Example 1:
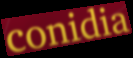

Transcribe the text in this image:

conidia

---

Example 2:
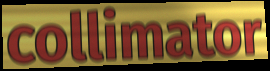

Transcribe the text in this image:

collimator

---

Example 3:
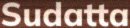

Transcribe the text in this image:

Sudatta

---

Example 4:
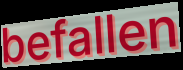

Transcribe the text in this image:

befallen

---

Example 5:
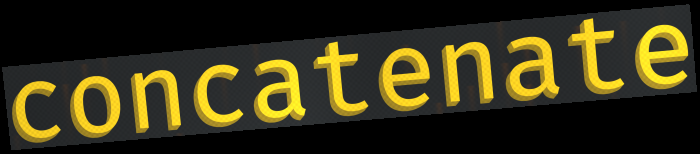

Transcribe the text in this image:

concatenate